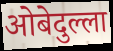
ओबेदुल्ला